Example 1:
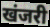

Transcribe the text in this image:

खंजरी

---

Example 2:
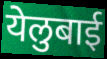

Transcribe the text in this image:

येलुबाई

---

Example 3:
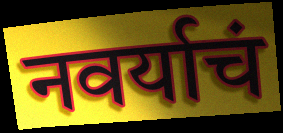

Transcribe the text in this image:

नवर्याचं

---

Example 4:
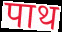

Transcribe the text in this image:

पाथ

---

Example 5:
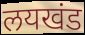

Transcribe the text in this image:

लयखंड